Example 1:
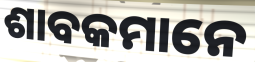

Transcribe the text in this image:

ଶାବକମାନେ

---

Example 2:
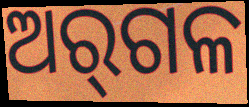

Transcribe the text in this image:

ଅର୍‌ଗଳ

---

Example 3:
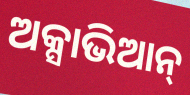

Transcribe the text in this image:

ଅକ୍ସାଭିଆନ୍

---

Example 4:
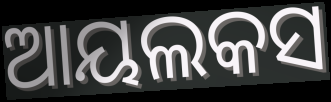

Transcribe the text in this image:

ଆୟଲକସ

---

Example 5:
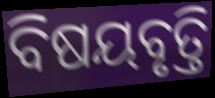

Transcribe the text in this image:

ବିଷୟବୃତ୍ତି